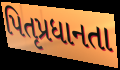
પિતૃપ્રધાનતા